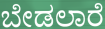
ಬೇಡಲಾರೆ